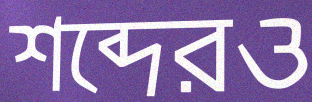
শব্দেরও